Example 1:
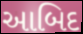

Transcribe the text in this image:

આબિદ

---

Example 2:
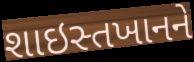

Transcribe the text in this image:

શાઇસ્તખાનને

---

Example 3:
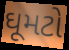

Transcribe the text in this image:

ઘૂમટો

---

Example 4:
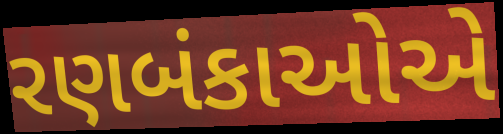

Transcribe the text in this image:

રણબંકાઓએ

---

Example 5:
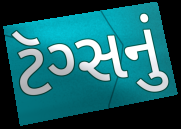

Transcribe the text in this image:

ટૅગ્સનું